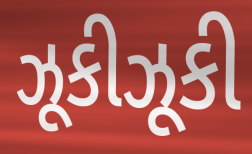
ઝૂકીઝૂકી